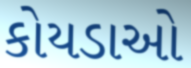
કોયડાઓ